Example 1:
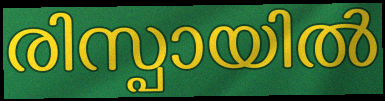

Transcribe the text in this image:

രിസ്പായിൽ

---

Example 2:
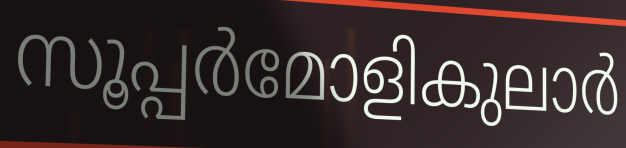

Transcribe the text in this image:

സൂപ്പർമോളികുലാർ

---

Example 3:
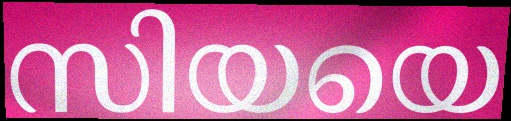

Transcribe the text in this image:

സിയയെ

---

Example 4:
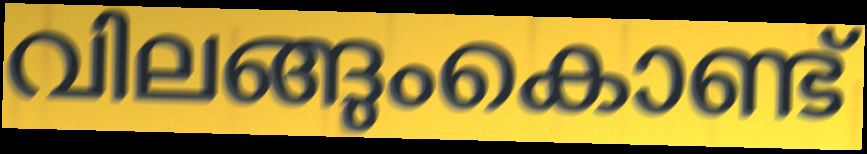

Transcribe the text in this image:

വിലങ്ങുംകൊണ്ട്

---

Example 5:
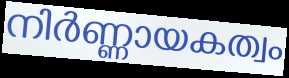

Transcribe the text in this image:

നിർണ്ണായകത്വം